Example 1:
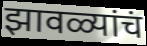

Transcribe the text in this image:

झावळ्यांचं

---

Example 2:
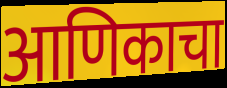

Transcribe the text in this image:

आणिकाचा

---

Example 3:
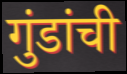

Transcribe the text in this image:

गुंडांची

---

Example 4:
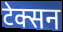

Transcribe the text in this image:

टेक्सन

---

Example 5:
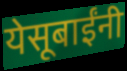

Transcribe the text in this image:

येसूबाईंनी